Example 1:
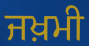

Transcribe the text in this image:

ਜਖ਼ਮੀ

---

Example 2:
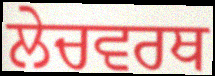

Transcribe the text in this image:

ਲੇਚਵਰਥ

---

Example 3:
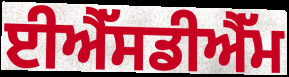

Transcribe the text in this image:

ਈਐੱਸਡੀਐੱਮ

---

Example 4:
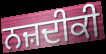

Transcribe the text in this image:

ਨਜ਼ਦੀਕੀ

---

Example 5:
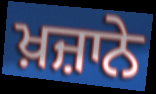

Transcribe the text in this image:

ਖ਼ਜ਼ਾਨੇ